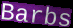
Barbs